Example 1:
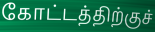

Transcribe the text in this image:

கோட்டத்திற்குச்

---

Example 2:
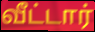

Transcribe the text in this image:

வீட்டார்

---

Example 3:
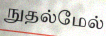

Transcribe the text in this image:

நுதல்மேல்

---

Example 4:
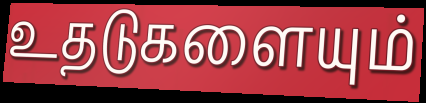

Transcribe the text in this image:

உதடுகளையும்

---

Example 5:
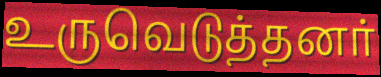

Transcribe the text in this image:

உருவெடுத்தனர்